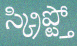
స్క్రిప్ట్తో